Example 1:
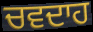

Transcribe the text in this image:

ਚਵਦਾਹ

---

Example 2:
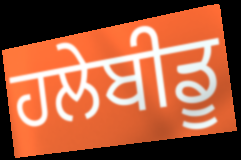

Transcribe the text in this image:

ਹਲੇਬੀਡੂ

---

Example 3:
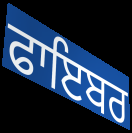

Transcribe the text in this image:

ਫਾਇਬਰ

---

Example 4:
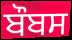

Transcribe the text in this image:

ਬੌਬਸ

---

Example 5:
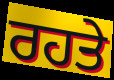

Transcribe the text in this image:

ਰਹਤੇ